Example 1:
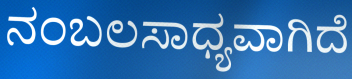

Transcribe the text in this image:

ನಂಬಲಸಾಧ್ಯವಾಗಿದೆ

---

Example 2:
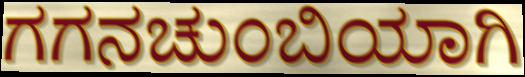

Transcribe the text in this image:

ಗಗನಚುಂಬಿಯಾಗಿ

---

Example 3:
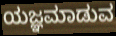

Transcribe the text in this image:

ಯಜ್ಞಮಾಡುವ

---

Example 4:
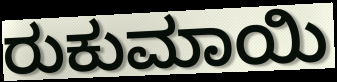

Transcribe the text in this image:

ರುಕುಮಾಯಿ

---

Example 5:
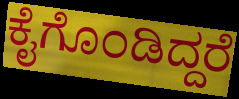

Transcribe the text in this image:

ಕೈಗೊಂಡಿದ್ದರೆ